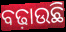
ବଢ଼ାଉଛି